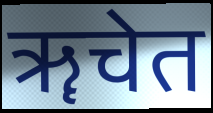
ॠचेत